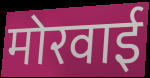
मोरवाई